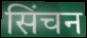
सिंचन